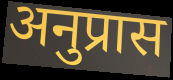
अनुप्रास